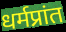
धर्मप्रांत